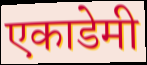
एकाडेमी